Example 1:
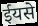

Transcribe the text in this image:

ईयसे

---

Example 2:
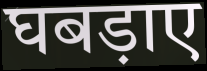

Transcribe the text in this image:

घबड़ाए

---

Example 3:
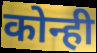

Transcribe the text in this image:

कोन्ही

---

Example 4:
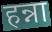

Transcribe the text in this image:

हन्ना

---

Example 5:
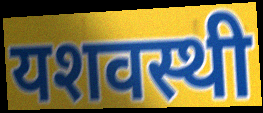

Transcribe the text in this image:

यशवस्थी